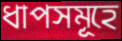
ধাপসমূহে